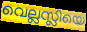
വെല്ലസ്ലിയെ